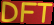
DFT